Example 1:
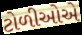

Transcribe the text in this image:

ટોળીઓએ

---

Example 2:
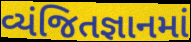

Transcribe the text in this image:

વ્યંજિતજ્ઞાનમાં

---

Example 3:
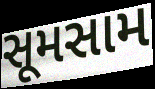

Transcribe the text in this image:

સૂમસામ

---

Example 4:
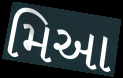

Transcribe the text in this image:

મિઆ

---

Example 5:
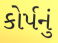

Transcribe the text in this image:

કોર્પનું